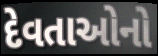
દેવતાઓનો